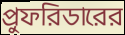
প্রুফরিডারের